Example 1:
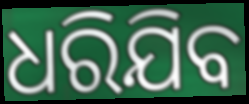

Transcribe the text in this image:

ଧରିଯିବ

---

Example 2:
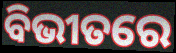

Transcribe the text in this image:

ବିଭୀତରେ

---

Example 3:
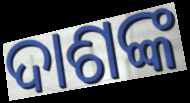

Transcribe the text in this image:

ଦାଶଙ୍କ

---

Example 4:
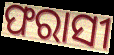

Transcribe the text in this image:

ଫରାସୀ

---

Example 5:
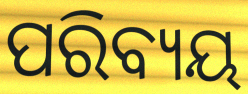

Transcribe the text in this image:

ପରିବ୍ୟୟ